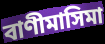
বাণীমাসিমা